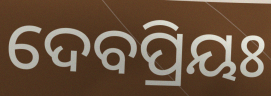
ଦେବପ୍ରିୟଃ